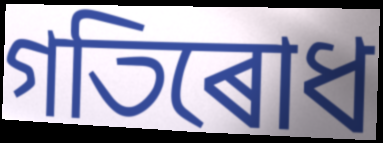
গতিৰোধ